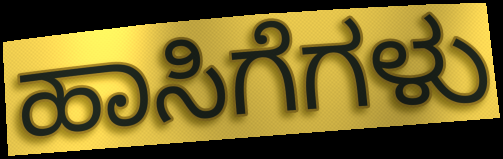
ಹಾಸಿಗೆಗಳು